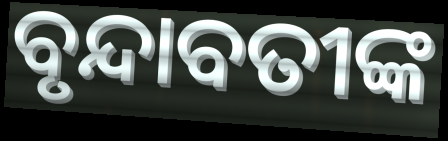
ବୃନ୍ଦାବତୀଙ୍କ